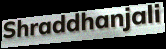
Shraddhanjali